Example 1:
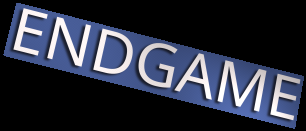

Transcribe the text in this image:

ENDGAME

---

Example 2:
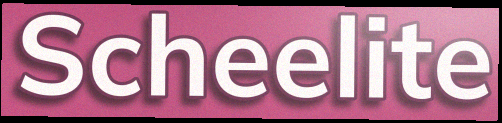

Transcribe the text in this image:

Scheelite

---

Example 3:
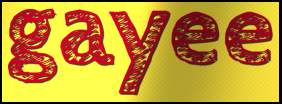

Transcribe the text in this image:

gayee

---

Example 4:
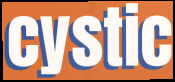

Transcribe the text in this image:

cystic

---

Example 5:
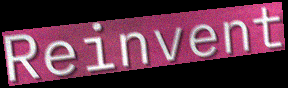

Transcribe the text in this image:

Reinvent